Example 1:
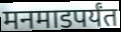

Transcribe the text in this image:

मनमाडपर्यंत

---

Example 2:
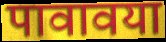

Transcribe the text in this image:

पावावया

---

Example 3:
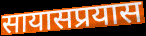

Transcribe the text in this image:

सायासप्रयास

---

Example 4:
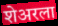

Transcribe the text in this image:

शेअरला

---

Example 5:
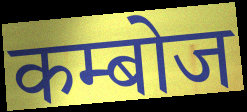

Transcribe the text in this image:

कम्बोज